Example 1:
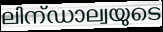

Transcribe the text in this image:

ലിന്ഡാല്വയുടെ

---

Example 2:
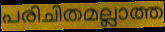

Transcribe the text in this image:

പരിചിതമല്ലാത്ത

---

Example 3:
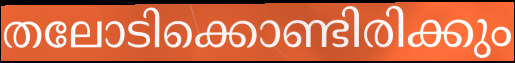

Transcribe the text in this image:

തലോടിക്കൊണ്ടിരിക്കും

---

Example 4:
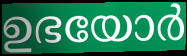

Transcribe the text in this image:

ഉഭയോർ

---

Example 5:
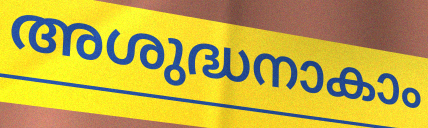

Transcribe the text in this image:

അശുദ്ധനാകാം